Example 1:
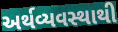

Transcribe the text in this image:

અર્થવ્યવસ્થાથી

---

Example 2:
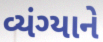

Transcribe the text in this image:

વ્યંગ્યાને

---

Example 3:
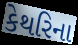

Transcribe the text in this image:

કેથરિના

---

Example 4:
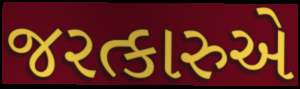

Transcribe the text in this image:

જરત્કારુએ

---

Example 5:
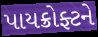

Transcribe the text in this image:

પાયક્રોફ્ટને